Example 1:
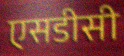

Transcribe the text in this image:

एसडीसी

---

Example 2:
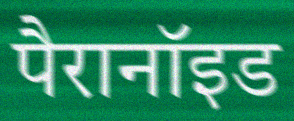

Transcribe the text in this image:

पैरानॉइड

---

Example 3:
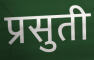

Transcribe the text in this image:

प्रसुती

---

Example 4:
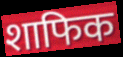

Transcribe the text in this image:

शाफिक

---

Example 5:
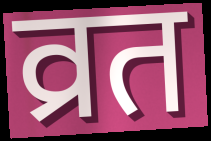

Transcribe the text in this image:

व्रत